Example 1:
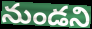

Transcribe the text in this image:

నుండని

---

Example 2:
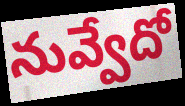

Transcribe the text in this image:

నువ్వేదో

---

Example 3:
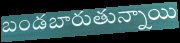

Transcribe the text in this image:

బండబారుతున్నాయి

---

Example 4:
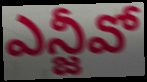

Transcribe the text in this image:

ఎన్జీవో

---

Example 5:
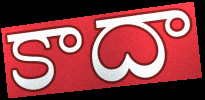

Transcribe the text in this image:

కాదా